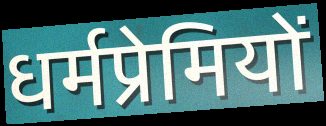
धर्मप्रेमियों